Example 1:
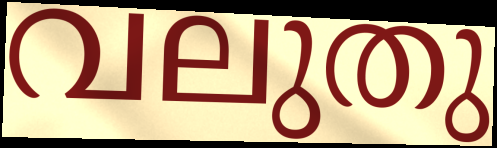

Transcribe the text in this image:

വലുതു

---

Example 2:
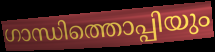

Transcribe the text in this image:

ഗാന്ധിത്തൊപ്പിയും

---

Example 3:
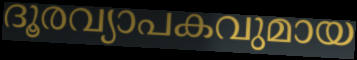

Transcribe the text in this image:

ദൂരവ്യാപകവുമായ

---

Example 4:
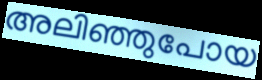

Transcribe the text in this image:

അലിഞ്ഞുപോയ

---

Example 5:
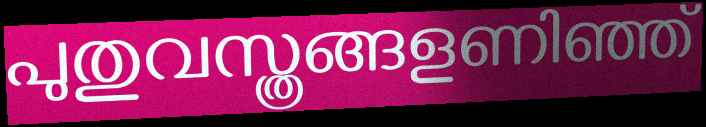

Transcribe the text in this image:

പുതുവസ്ത്രങ്ങളണിഞ്ഞ്